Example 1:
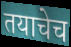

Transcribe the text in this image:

तयाचेच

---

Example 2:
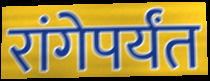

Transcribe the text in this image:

रांगेपर्यंत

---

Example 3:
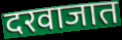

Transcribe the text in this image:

दरवाजात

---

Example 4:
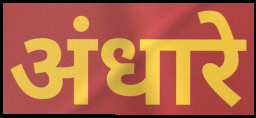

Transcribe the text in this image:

अंधारे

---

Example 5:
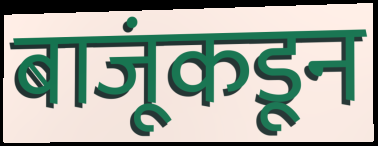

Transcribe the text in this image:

बाजूंकडून